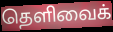
தெளிவைக்